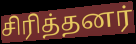
சிரித்தனர்